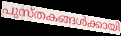
പുസ്തകങ്ങൾക്കായി